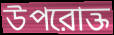
উপরোক্ত